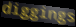
diggings